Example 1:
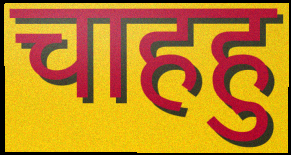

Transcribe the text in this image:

चाहहु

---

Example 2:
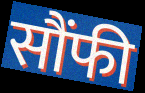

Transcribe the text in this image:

सौंफी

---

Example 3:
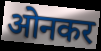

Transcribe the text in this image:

ओनकर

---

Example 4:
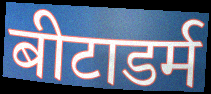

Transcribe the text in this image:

बीटाडर्म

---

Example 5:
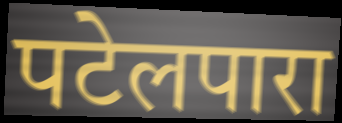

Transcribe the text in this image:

पटेलपारा